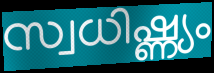
സ്വധിഷ്ണ്യം